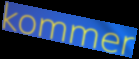
kommer